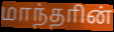
மாந்தரின்